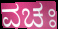
ವಚಃ